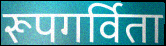
रूपगर्विता